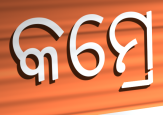
କମ୍ରେ